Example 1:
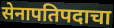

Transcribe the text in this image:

सेनापतिपदाचा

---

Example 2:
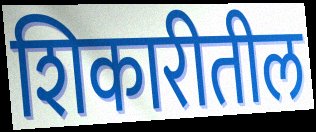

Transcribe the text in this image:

शिकारीतील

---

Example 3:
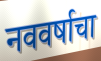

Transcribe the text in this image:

नववर्षाचा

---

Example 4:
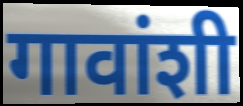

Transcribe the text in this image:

गावांशी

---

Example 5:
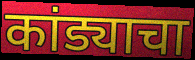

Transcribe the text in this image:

कांड्याचा